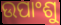
ଉପାଂଶୁ